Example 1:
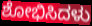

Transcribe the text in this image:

ಶೋಭಿಸಿದಳು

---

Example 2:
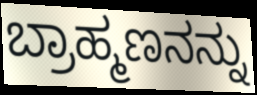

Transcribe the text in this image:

ಬ್ರಾಹ್ಮಣನನ್ನು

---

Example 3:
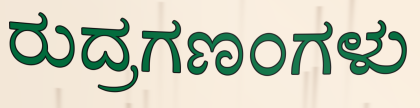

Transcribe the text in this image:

ರುದ್ರಗಣಂಗಳು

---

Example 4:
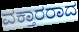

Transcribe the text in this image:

ವಕ್ತಾರರಾದ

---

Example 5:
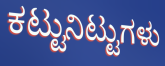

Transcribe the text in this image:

ಕಟ್ಟುನಿಟ್ಟುಗಳು